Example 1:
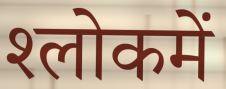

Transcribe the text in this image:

श्‍लोकमें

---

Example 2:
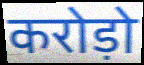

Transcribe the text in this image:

करोड़ो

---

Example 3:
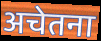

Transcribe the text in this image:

अचेतना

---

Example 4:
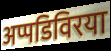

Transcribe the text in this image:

अप्पडिविरया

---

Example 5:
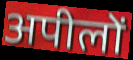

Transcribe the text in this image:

अपीलों